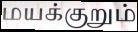
மயக்குறும்